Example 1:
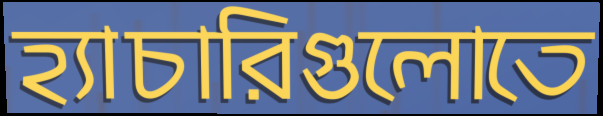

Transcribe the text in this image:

হ্যাচারিগুলোতে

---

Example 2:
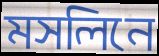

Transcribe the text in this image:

মসলিনে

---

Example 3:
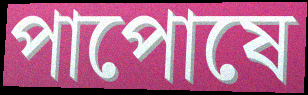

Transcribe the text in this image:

পাপোষে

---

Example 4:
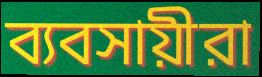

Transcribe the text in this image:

ব্যবসায়ীরা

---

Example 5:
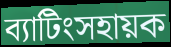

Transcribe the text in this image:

ব্যাটিংসহায়ক